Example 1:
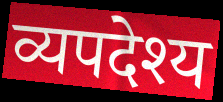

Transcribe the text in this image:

व्यपदेश्य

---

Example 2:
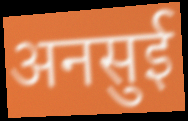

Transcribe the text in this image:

अनसुई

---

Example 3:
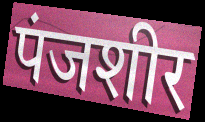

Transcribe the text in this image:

पंजशीर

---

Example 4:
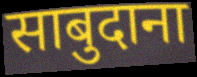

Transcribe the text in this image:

साबुदाना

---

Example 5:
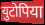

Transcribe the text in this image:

युटोपिया